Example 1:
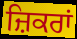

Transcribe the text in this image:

ਜ਼ਿਕਰਾਂ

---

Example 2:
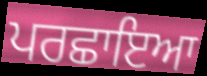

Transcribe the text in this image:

ਪਰਛਾਇਆ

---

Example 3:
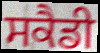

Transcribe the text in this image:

ਸਕੈਡੀ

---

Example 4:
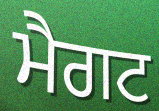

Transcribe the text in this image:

ਮੈਗਟ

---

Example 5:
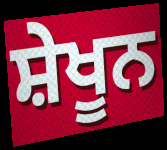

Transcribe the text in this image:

ਸ਼ੇਖੂਨ